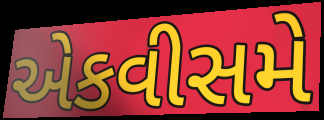
એકવીસમે